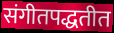
संगीतपद्धतीत